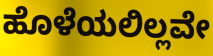
ಹೊಳೆಯಲಿಲ್ಲವೇ